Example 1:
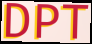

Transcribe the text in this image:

DPT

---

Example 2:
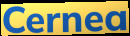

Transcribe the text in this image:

Cernea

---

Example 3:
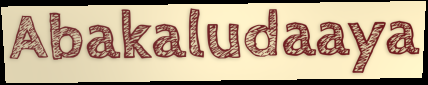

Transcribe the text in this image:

Abakaludaaya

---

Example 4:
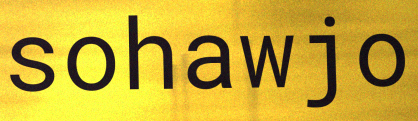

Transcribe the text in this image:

sohawjo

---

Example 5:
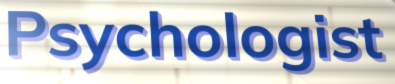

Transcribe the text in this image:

Psychologist